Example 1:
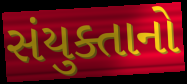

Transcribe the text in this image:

સંયુક્તાનો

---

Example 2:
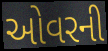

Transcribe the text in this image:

ઓવરની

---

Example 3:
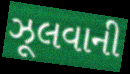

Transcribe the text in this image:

ઝૂલવાની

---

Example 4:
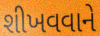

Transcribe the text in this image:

શીખવવાને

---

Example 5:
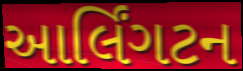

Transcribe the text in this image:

આર્લિંગટન